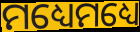
ମଧ୍ୟେମଧ୍ୟେ